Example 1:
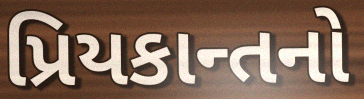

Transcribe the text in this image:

પ્રિયકાન્તનો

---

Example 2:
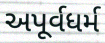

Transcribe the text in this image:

અપૂર્વધર્મ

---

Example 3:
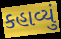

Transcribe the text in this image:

કહાવ્યું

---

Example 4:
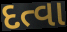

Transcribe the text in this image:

દત્વા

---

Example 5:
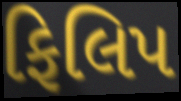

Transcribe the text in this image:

ફિલિપ